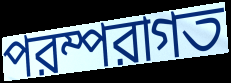
পরম্পরাগত